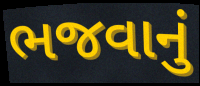
ભજવાનું